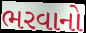
ભરવાનો